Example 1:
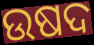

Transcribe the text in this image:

ଉଷଦ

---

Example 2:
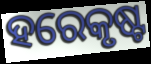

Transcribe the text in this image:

ହରେକୃଷ୍ଟ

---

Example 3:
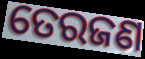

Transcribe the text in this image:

ତେରଜଣ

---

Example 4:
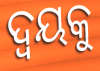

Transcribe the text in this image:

ଦ୍ଵୟକୁ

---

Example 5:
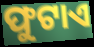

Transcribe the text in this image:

ଫୁଟାଏ